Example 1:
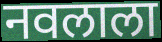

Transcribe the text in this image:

नवलाला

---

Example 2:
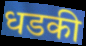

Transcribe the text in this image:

धडकी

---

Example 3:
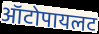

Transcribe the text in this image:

ऑटोपायलट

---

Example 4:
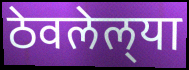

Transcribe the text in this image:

ठेवलेल्या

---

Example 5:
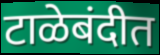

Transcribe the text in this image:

टाळेबंदीत